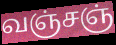
வஞ்சஞ்